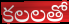
కలలతో